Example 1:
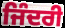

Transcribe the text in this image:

ਜਿੰਦਰੀ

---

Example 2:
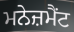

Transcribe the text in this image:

ਮਨੇਜ਼ਮੈਂਟ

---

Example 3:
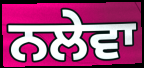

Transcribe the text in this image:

ਨਲੇਵਾ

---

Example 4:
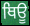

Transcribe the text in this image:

ਥਿਊ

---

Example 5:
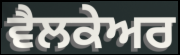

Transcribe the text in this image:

ਵੈਲਕੇਅਰ